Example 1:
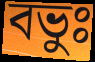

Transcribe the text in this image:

বভুঃ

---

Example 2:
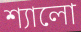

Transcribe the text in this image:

শ্যালো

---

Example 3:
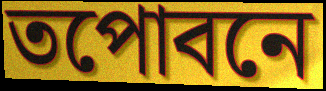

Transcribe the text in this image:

তপোবনে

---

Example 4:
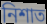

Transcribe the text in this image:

নিশাত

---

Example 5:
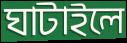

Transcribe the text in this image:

ঘাটাইলে